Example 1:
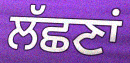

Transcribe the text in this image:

ਲੱਛਣਾਂ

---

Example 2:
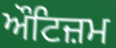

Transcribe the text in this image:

ਔਟਿਜ਼ਮ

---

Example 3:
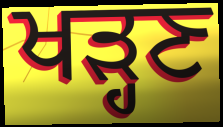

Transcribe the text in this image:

ਖੜ੍ਹਣ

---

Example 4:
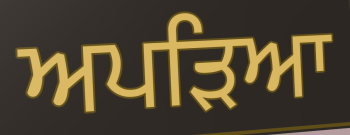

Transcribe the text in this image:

ਅਪੜਿਆ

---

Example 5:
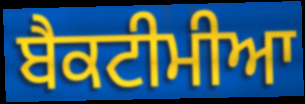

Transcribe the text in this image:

ਬੈਕਟੀਮੀਆ